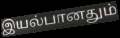
இயல்பானதும்